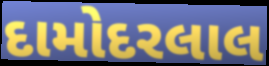
દામોદરલાલ